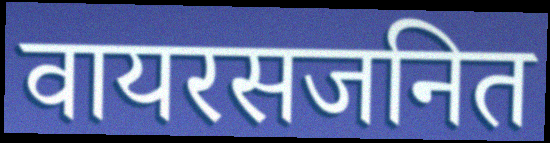
वायरसजनित